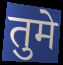
तुमे